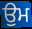
ਉਮ